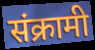
संक्रामी